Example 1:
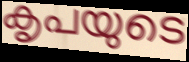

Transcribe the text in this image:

കൃപയുടെ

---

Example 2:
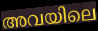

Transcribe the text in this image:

അവയിലെ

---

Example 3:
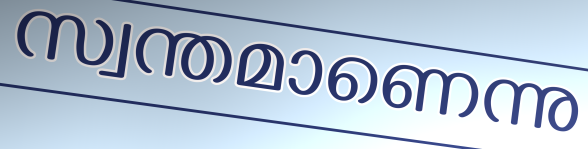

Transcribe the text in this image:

സ്വന്തമാണെന്നു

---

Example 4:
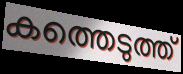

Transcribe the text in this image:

കത്തെടുത്ത്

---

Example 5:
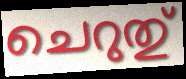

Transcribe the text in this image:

ചെറുതു്